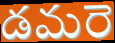
డమరె